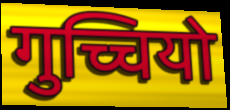
गुच्चियो